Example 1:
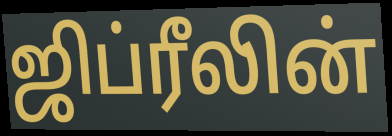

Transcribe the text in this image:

ஜிப்ரீலின்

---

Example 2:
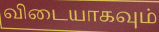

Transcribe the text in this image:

விடையாகவும்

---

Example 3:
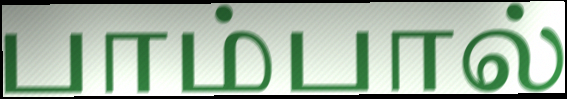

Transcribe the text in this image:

பாம்பால்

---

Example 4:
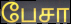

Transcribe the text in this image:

பேசா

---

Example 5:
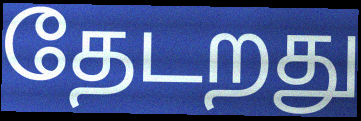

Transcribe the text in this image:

தேடறது